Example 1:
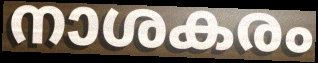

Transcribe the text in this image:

നാശകരം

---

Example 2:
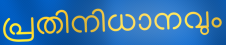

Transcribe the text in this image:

പ്രതിനിധാനവും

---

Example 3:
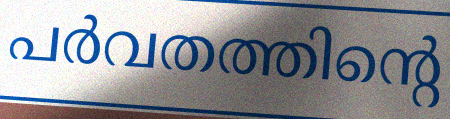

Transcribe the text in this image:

പർവതത്തിന്റെ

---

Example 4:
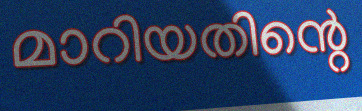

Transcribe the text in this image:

മാറിയതിന്റെ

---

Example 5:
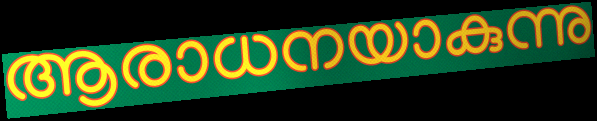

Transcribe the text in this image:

ആരാധനയാകുന്നു